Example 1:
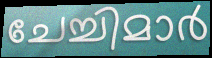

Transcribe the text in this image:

ചേച്ചിമാർ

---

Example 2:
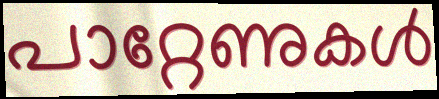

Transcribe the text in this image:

പാറ്റേണുകൾ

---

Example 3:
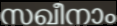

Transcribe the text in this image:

സഖീനാം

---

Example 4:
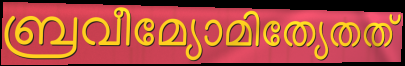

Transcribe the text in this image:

ബ്രവീമ്യോമിത്യേതത്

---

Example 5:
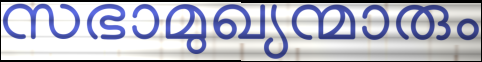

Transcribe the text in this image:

സഭാമുഖ്യന്മാരും